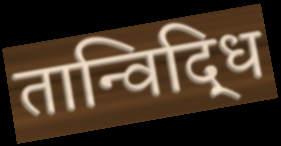
तान्विद्धि